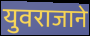
युवराजाने